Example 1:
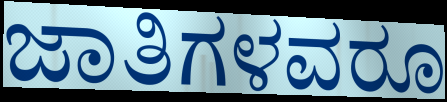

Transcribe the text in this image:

ಜಾತಿಗಳವರೂ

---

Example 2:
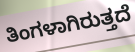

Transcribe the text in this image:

ತಿಂಗಳಾಗಿರುತ್ತದೆ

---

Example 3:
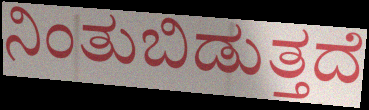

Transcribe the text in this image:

ನಿಂತುಬಿಡುತ್ತದೆ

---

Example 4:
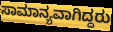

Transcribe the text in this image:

ಸಾಮಾನ್ಯವಾಗಿದ್ದರು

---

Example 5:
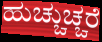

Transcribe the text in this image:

ಹುಚ್ಚುಚ್ಚರೆ